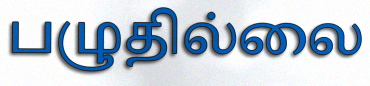
பழுதில்லை